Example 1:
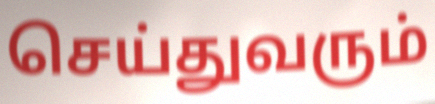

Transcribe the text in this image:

செய்துவரும்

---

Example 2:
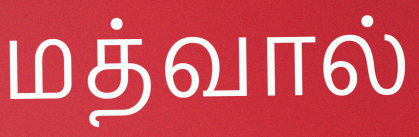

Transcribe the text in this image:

மத்வால்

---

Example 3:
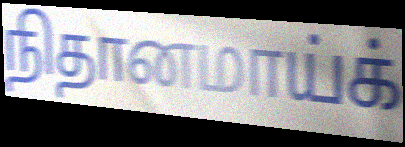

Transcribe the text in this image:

நிதானமாய்க்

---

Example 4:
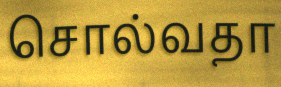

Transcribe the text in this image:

சொல்வதா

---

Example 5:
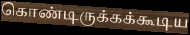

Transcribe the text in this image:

கொண்டிருக்கக்கூடிய